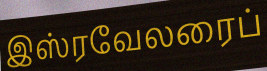
இஸ்ரவேலரைப்